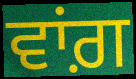
ਵਾਂਗ਼